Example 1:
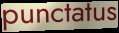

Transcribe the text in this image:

punctatus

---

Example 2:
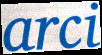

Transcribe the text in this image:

arci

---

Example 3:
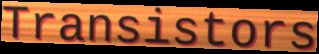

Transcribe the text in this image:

Transistors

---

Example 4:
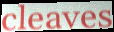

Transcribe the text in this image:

cleaves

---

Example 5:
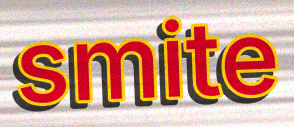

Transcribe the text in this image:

smite